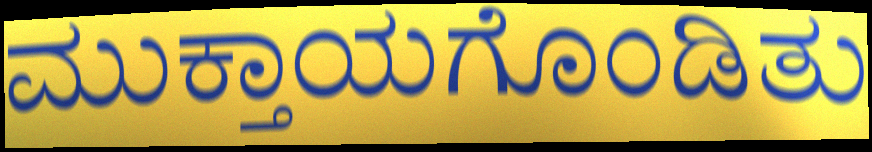
ಮುಕ್ತಾಯಗೊಂಡಿತು